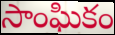
సాంఘికం